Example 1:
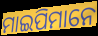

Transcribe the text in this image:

ମାଇପିମାନେ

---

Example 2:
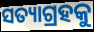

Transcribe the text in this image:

ସତ୍ୟାଗ୍ରହକୁ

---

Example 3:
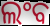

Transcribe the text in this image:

ଲଂବ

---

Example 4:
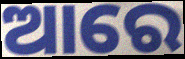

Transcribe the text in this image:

ଆରେ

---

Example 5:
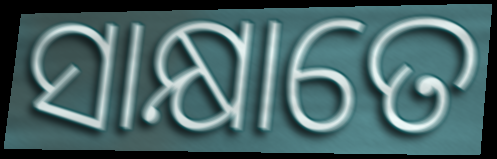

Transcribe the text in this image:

ସାକ୍ଷାତେ